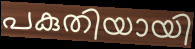
പകുതിയായി